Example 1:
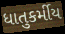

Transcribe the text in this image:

ધાતુકર્મીય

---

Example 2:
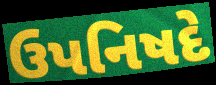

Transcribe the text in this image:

ઉપનિષદે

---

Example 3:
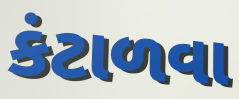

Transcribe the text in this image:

કંટાળવા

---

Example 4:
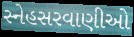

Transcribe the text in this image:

સ્નેહસરવાણીઓ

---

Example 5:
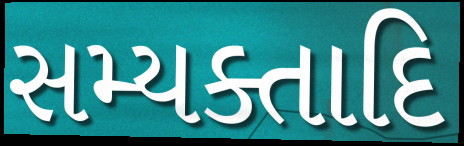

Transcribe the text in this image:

સમ્યક્તાદિ